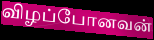
விழப்போனவன்